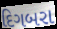
દિગબરા